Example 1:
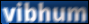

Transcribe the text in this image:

vibhum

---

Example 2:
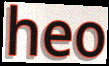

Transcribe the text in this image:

heo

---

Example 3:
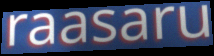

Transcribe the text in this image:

raasaru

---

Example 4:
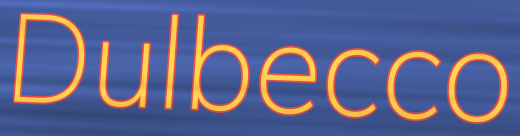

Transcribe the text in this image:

Dulbecco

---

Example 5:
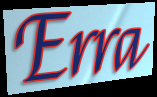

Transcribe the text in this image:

Erra